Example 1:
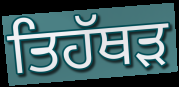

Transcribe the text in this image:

ਤਿਹੱਥੜ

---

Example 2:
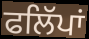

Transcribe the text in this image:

ਫਲਿੱਪਾਂ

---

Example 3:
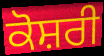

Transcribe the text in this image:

ਕੋਸ਼ਰੀ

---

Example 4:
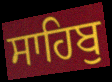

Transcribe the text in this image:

ਸਾਹਿਬੁ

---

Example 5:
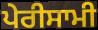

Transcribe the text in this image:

ਪੇਰੀਸਾਮੀ